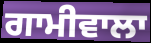
ਗਾਮੀਵਾਲਾ